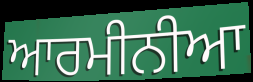
ਆਰਮੀਨੀਆ